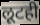
लूटही